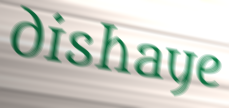
dishaye